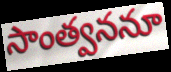
సాంత్వననూ